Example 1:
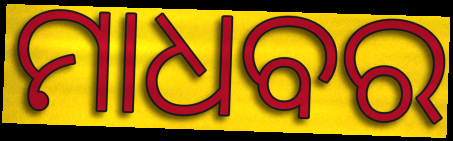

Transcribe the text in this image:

ମାଧବର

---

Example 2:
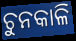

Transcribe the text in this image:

ଚୁନକାଳି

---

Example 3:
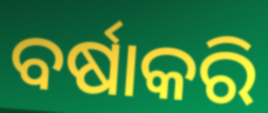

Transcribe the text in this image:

ବର୍ଷାକରି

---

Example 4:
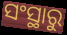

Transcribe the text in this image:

ସଂସ୍ଥାରୁ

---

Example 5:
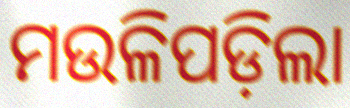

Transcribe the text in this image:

ମଉଳିପଡ଼ିଲା